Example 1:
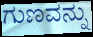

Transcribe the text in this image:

ಗುಣವನ್ನು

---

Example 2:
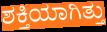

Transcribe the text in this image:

ಶಕ್ತಿಯಾಗಿತ್ತು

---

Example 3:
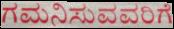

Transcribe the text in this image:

ಗಮನಿಸುವವರಿಗೆ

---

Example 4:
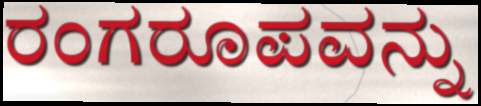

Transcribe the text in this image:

ರಂಗರೂಪವನ್ನು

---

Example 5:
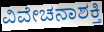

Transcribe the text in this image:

ವಿವೇಚನಾಶಕ್ತಿ